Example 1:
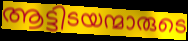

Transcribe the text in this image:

ആട്ടിടയന്മാരുടെ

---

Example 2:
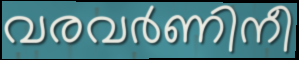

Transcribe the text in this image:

വരവർണിനീ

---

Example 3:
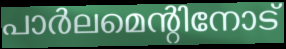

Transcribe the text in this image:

പാർലമെന്റിനോട്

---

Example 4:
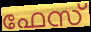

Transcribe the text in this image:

ഫേസ്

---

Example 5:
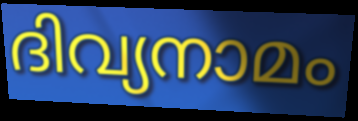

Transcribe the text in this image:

ദിവ്യനാമം